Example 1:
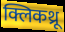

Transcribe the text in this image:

क्लिकथ्रू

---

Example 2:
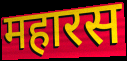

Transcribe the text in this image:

महारस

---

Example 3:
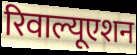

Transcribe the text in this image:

रिवाल्यूएशन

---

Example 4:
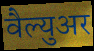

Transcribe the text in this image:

वैल्युअर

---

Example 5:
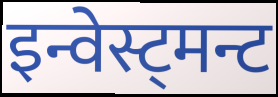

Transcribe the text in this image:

इन्वेस्ट्मन्ट